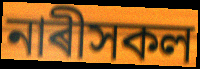
নাৰীসকল